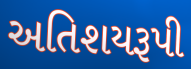
અતિશયરૂપી